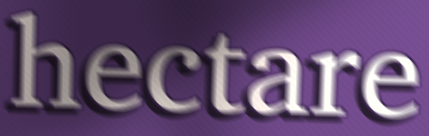
hectare